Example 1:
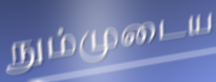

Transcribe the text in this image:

நும்முடைய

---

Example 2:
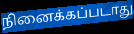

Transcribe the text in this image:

நினைக்கப்படாது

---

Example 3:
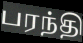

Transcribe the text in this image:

பரந்தி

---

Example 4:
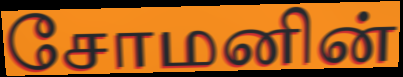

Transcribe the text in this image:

சோமனின்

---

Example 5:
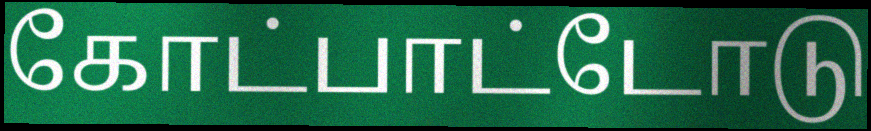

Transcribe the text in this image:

கோட்பாட்டோடு